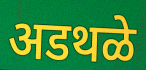
अडथळे